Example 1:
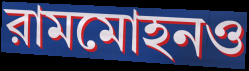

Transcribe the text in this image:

রামমোহনও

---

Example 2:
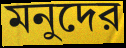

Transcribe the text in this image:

মনুদের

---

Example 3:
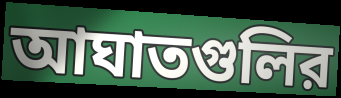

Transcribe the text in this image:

আঘাতগুলির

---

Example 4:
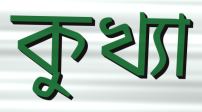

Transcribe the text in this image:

কুখ্যা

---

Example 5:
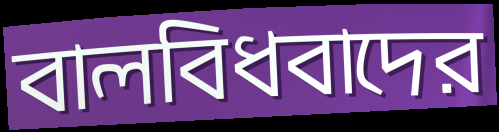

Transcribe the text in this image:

বালবিধবাদের